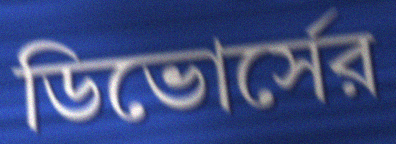
ডিভোর্সের